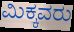
ಮಿಕ್ಕವರು